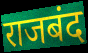
राजबंद